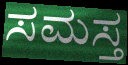
ಸಮಸ್ತ